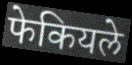
फेकियले